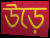
উড়ে